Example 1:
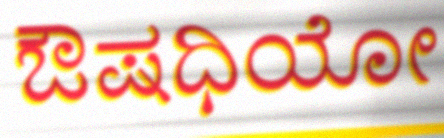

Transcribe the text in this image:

ಔಷಧಿಯೋ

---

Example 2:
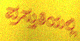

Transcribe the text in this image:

ಪ್ರಸ್ತುತಿಯಲ್ಲಿ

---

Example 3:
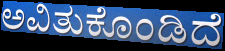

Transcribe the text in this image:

ಅವಿತುಕೊಂಡಿದೆ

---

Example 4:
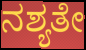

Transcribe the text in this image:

ನಶ್ಯತೇ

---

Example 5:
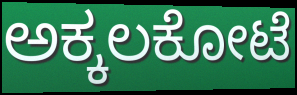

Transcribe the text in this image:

ಅಕ್ಕಲಕೋಟೆ